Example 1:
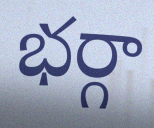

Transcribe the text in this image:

భర్గా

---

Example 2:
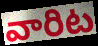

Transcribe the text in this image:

వారిట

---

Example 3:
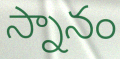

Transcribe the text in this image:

స్నానం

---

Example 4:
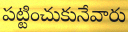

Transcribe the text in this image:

పట్టించుకునేవారు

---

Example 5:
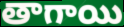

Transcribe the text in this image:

తాగాయి